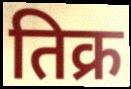
तिक्र